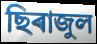
ছিৰাজুল